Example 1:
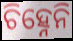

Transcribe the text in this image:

ଚିହ୍ନେନି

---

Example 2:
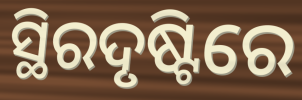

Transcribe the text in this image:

ସ୍ଥିରଦୃଷ୍ଟିରେ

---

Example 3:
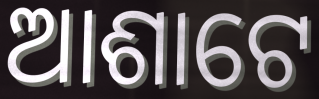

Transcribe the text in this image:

ଆଶାଟେ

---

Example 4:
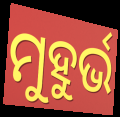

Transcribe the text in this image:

ମୁହୁର୍ଭ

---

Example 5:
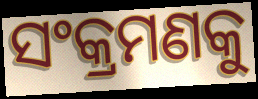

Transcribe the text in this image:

ସଂକ୍ରମଣକୁ